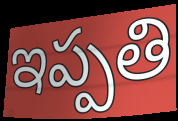
ఇప్పతి